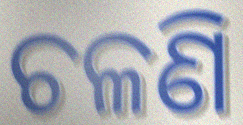
ଚଳଣି